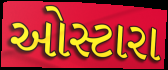
ઓસ્ટારા